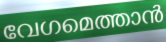
വേഗമെത്താൻ